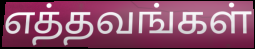
எத்தவங்கள்